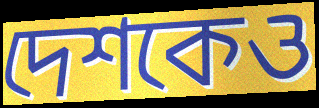
দেশকেও